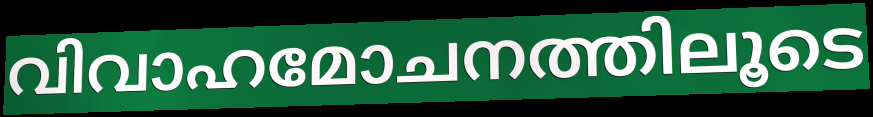
വിവാഹമോചനത്തിലൂടെ